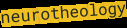
neurotheology